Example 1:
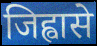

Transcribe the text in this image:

जिह्वासे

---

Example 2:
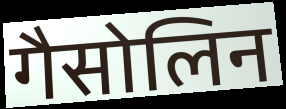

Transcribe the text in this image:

गैसोलिन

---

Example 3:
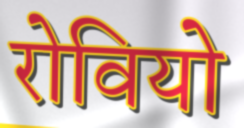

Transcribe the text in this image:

रोवियो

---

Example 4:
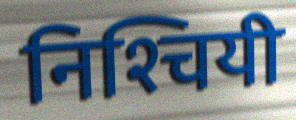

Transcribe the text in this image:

निश्चियी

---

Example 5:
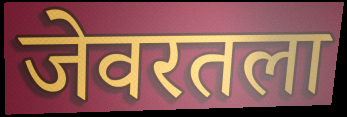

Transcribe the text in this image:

जेवरतला